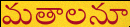
మతాలనూ